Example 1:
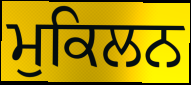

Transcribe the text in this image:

ਮੁਕਿਲਨ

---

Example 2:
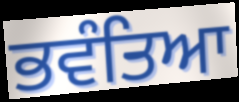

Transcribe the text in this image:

ਭਵੰਤਿਆ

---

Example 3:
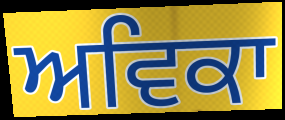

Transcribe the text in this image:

ਅਵਿਕਾ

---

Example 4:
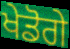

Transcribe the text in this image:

ਖੇਡੋਗੇ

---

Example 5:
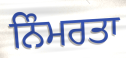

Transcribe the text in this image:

ਨਿੰਮਰਤਾ